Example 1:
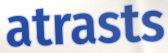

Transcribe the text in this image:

atrasts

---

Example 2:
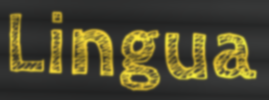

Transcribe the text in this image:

Lingua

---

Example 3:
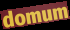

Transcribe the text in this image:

domum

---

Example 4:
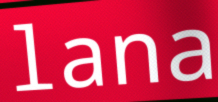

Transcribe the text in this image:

lana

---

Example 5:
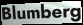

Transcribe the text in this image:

Blumberg